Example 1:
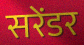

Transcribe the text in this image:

सरेंडर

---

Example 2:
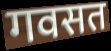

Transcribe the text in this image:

गवसत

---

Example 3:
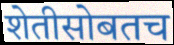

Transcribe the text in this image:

शेतीसोबतच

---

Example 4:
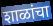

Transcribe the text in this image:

शाळांचा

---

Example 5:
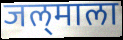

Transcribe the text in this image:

जल्माला